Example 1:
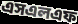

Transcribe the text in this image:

এসএলএফ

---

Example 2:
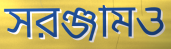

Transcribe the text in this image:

সরঞ্জামও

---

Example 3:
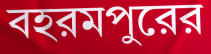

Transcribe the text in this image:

বহরমপুরের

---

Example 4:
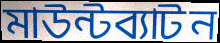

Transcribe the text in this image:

মাউন্টব্যাটন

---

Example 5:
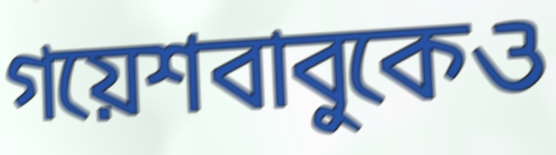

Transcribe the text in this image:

গয়েশবাবুকেও